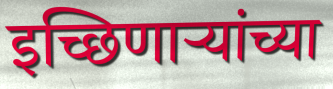
इच्छिणार्‍यांच्या